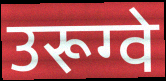
उरूग्वे